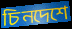
চিনদেশে